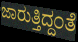
ಜಾರುತ್ತಿದ್ದಂತೆ